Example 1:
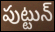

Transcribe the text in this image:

పుట్టున్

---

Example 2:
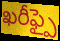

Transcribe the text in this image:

ఖరీఫ్పై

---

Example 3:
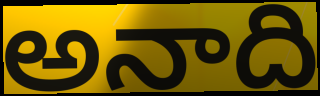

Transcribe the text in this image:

అనాది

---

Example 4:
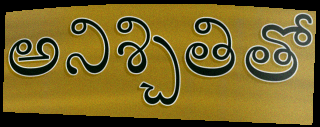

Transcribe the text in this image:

అనిశ్చితితో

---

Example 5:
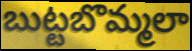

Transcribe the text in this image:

బుట్టబొమ్మలా